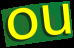
ou